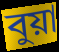
বুয়া